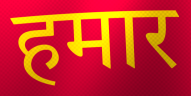
हमार